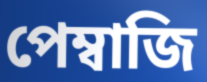
পেম্বাজি